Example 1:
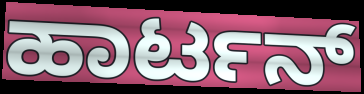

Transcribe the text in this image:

ಹಾರ್ಟನ್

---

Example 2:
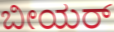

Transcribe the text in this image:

ಬೀಯರ್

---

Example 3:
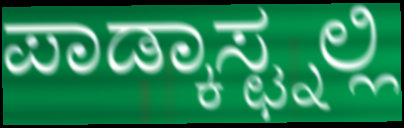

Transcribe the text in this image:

ಪಾಡ್ಕಾಸ್ಟ್ನಲ್ಲಿ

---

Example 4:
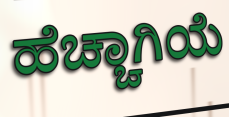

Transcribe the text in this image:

ಹೆಚ್ಚಾಗಿಯೆ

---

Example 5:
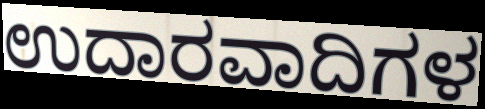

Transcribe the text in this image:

ಉದಾರವಾದಿಗಳ